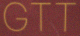
GTT